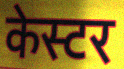
केस्टर